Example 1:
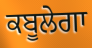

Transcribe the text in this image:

ਕਬੂਲੇਗਾ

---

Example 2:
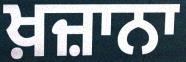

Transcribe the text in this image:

ਖ਼ਜ਼ਾਨਾ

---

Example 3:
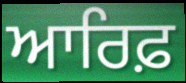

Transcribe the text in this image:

ਆਰਿਫ਼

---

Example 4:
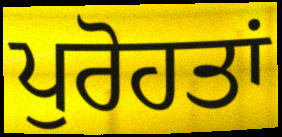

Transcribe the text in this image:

ਪੁਰੋਹਤਾਂ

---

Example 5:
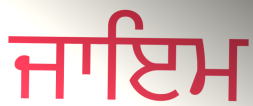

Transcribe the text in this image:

ਜਾਇਮ